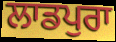
ਲਾਡਪੁਰਾ